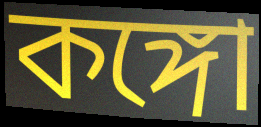
কঙ্গো